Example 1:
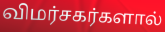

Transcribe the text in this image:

விமர்சகர்களால்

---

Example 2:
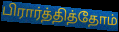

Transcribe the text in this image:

பிரார்த்தித்தோம்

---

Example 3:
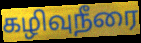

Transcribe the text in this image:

கழிவுநீரை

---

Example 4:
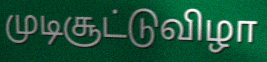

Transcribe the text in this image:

முடிசூட்டுவிழா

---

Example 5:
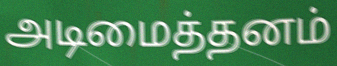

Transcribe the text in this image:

அடிமைத்தனம்